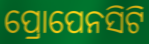
ପ୍ରୋପେନସିଟି